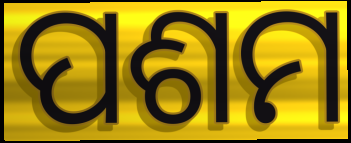
ପଶମ